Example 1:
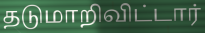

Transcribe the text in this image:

தடுமாறிவிட்டார்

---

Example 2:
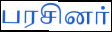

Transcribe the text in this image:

பரசினர்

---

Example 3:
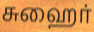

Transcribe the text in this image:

சுஹைர்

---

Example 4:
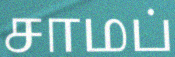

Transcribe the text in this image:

சாமப்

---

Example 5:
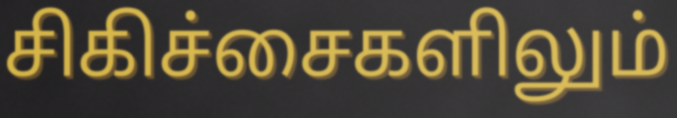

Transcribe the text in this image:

சிகிச்சைகளிலும்